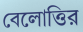
বেলোত্তির